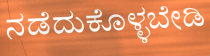
ನಡೆದುಕೊಳ್ಳಬೇಡಿ